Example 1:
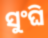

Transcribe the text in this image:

ସୁଂଘି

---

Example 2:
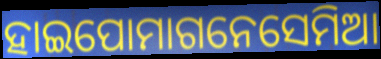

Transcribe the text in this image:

ହାଇପୋମାଗନେସେମିଆ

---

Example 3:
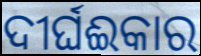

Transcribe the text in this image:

ଦୀର୍ଘଈକାର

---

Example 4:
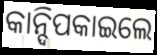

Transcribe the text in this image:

କାନ୍ଦିପକାଇଲେ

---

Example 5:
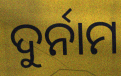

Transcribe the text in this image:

ଦୁର୍ନାମ